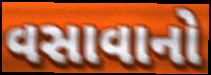
વસાવાનો